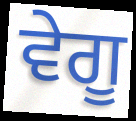
ਵੇਗੂ